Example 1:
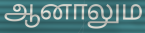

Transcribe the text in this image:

ஆனாலும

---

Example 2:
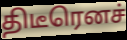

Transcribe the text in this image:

திடீரெனச்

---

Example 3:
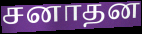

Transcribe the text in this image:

சனாதன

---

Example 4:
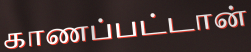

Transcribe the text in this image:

காணப்பட்டான்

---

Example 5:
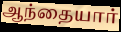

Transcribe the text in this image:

ஆந்தையார்